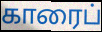
காரைப்